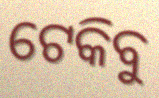
ଟେକିବୁ